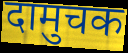
दामुचक